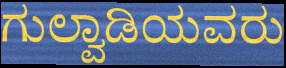
ಗುಲ್ವಾಡಿಯವರು